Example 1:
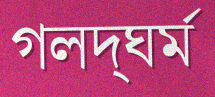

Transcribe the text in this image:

গলদ্‌ঘর্ম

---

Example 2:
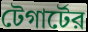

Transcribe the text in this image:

টেগার্টের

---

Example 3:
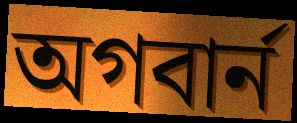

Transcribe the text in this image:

অগবার্ন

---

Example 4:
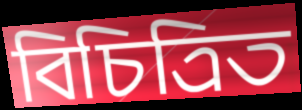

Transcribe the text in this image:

বিচিত্রিত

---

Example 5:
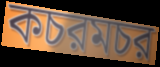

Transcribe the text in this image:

কচরমচর